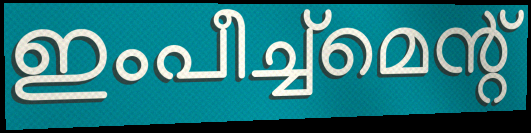
ഇംപീച്ച്മെന്റ്